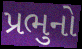
પ્રભુનો